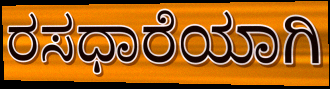
ರಸಧಾರೆಯಾಗಿ